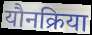
यौनक्रिया